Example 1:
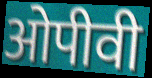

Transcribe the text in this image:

ओपीवी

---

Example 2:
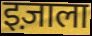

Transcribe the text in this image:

इज़ाला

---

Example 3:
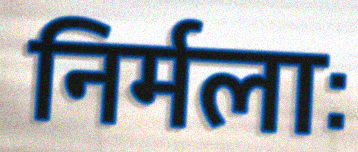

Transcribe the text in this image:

निर्मलाः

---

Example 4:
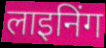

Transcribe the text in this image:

लाइनिंग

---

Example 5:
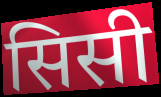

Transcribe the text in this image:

सिसी